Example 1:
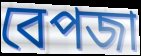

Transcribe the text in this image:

বেপজা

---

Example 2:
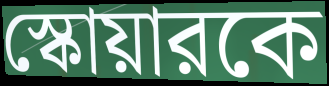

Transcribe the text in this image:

স্কোয়ারকে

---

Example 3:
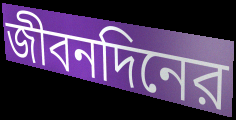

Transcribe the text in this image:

জীবনদিনের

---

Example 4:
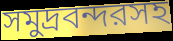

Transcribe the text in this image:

সমুদ্রবন্দরসহ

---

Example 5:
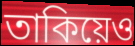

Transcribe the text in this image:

তাকিয়েও